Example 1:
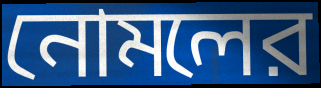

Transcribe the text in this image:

নোমলের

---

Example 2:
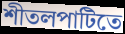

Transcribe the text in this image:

শীতলপাটিতে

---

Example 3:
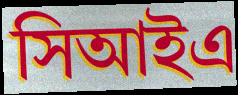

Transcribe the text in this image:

সিআইএ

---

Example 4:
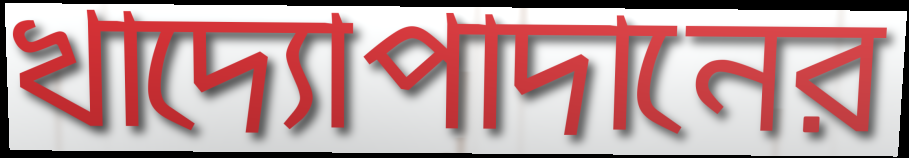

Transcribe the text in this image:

খাদ্যোপাদানের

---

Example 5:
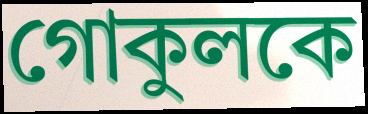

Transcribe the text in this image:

গোকুলকে